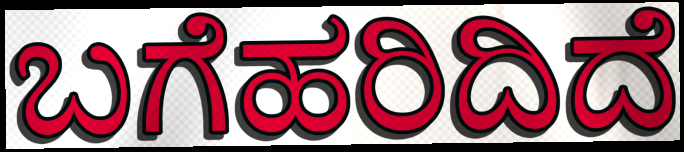
ಬಗೆಹರಿದಿದೆ